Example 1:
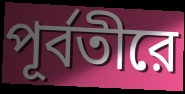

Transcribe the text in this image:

পূর্বতীরে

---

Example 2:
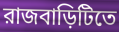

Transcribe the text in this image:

রাজবাড়িটিতে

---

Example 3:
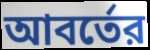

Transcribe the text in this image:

আবর্তের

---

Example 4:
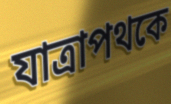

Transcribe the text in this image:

যাত্রাপথকে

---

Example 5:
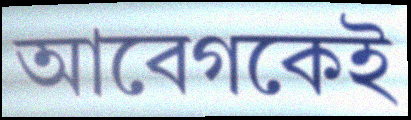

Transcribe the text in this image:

আবেগকেই